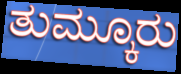
ತುಮ್ಕೂರು